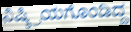
ನಿಷ್ಕ್ರಿಯಗೊಂಡಿದ್ದ